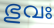
ഭുവഃ